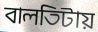
বালতিটায়